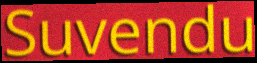
Suvendu